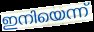
ഇനിയെന്ന്